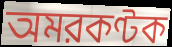
অমরকণ্টক